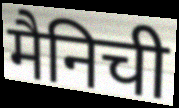
मैनिची